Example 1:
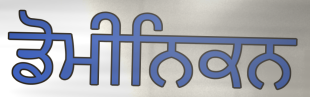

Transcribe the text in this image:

ਡੋਮੀਨਿਕਨ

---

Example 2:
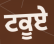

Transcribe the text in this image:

ਟਕੂਏ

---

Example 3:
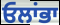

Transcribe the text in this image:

ਓਲਾਂਭਾ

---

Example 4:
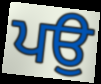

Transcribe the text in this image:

ਪਉ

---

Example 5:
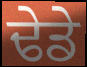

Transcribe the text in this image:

ਢੇਡੇ